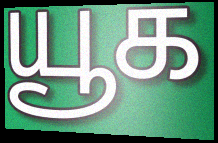
யூக